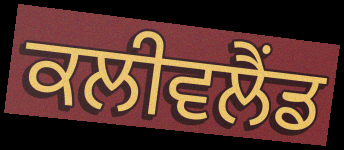
ਕਲੀਵਲੈਂਡ